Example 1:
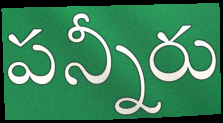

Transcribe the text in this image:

పన్నీరు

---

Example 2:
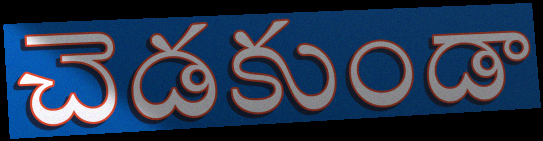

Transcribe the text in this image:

చెడకుండా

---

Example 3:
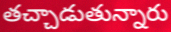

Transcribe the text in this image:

తచ్చాడుతున్నారు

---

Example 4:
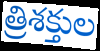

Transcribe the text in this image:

త్రిశక్తుల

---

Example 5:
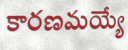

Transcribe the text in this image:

కారణమయ్యే